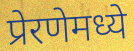
प्रेरणेमध्ये